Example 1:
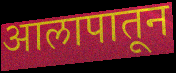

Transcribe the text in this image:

आलापातून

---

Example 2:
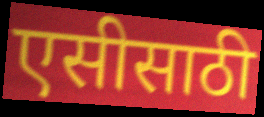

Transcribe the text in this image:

एसीसाठी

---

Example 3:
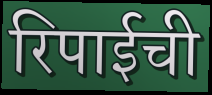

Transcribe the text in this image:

रिपाईची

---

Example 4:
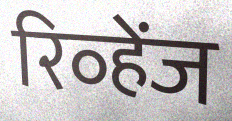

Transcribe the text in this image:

रिव्हेंज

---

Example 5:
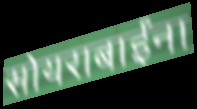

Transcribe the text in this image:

सोयराबाईंना